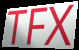
TFX